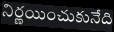
నిర్ణయించుకునేది